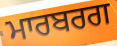
ਮਾਰਬਰਗ